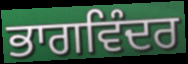
ਭਾਗਵਿੰਦਰ